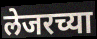
लेजरच्या